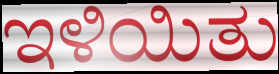
ಇಳಿಯಿತು